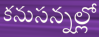
కనుసన్నల్లో